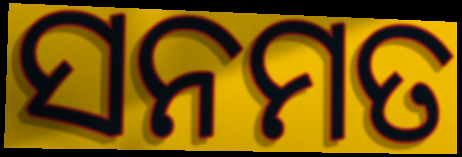
ସନମତ